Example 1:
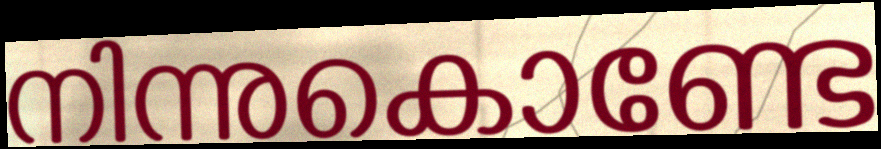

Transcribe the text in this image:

നിന്നുകൊണ്ടേ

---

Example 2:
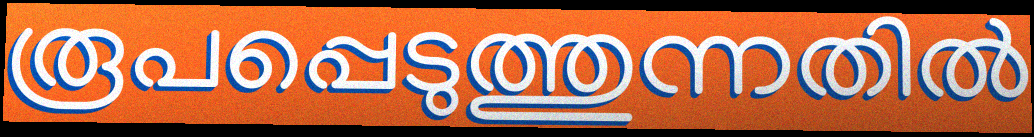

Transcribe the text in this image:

രൂപപ്പെടുത്തുന്നതിൽ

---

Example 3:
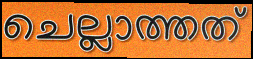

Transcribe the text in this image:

ചെല്ലാത്തത്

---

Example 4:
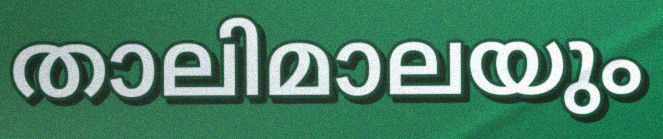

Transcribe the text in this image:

താലിമാലയും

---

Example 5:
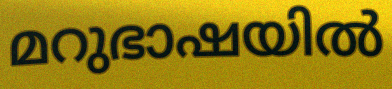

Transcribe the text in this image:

മറുഭാഷയിൽ